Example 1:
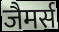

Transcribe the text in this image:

जैमर्स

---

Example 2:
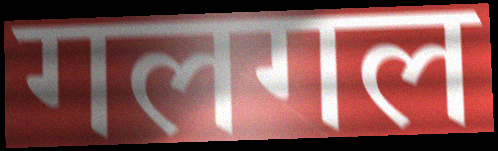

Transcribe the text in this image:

गलगल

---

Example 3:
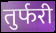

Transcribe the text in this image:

तुर्फरी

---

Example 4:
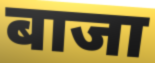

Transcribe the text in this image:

बाजा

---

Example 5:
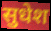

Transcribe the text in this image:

सुधेश